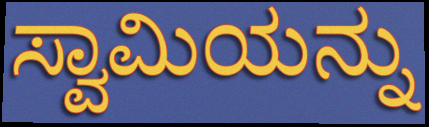
ಸ್ವಾಮಿಯನ್ನು